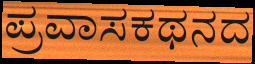
ಪ್ರವಾಸಕಥನದ